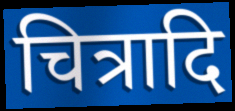
चित्रादि